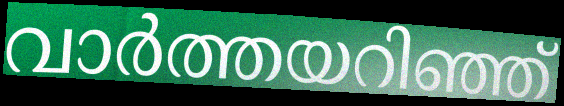
വാർത്തയറിഞ്ഞ്